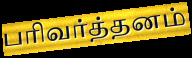
பரிவர்த்தனம்